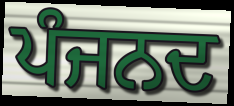
ਪੰਜਨਦ